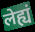
लेह्यं